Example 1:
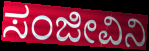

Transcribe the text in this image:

ಸಂಜೀವಿನಿ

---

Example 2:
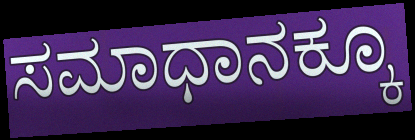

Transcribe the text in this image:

ಸಮಾಧಾನಕ್ಕೂ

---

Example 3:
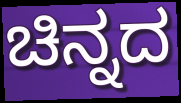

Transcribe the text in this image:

ಚಿನ್ನದ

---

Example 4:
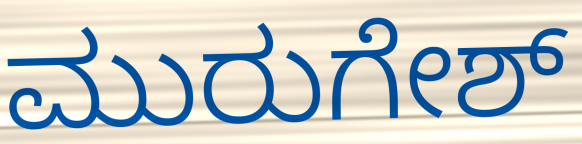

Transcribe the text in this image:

ಮುರುಗೇಶ್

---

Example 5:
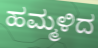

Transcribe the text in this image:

ಹಮ್ಮಳಿದ